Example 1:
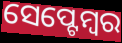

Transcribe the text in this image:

ସେପ୍ଟେମ୍ୱର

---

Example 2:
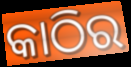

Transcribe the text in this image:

କାଠିର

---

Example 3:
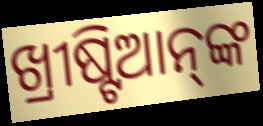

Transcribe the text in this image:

ଖ୍ରୀଷ୍ଟିଆନ୍‌ଙ୍କ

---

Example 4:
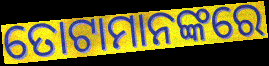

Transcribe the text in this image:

ତୋଟାମାନଙ୍କରେ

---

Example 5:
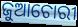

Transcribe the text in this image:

ଜୁଆଚୋରୀ